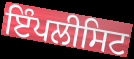
ਇੰਪਲੀਸਿਟ